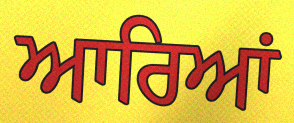
ਆਰਿਆਂ